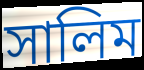
সালিম